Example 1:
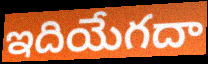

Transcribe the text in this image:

ఇదియేగదా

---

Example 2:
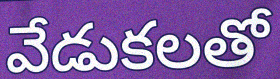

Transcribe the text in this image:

వేడుకలతో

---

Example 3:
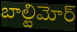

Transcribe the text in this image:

బాల్టిమోర్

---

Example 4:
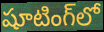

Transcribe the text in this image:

షూటింగ్‌లో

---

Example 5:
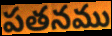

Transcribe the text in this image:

పతనము